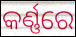
କର୍ଣ୍ଣରେ